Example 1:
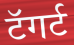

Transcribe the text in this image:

टॅगर्ट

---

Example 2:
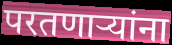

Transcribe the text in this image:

परतणाऱ्यांना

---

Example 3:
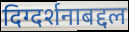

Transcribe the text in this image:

दिग्दर्शनाबद्दल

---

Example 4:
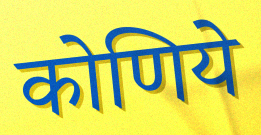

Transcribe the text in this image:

कोणिये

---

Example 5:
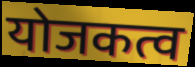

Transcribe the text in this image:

योजकत्व